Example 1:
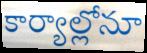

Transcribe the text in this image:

కార్యాల్లోనూ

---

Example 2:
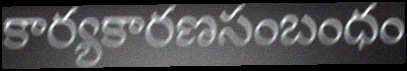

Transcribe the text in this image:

కార్యకారణసంబంధం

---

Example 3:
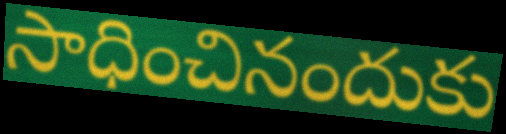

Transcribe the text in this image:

సాధించినందుకు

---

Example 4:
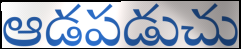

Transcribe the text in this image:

ఆడపడుచు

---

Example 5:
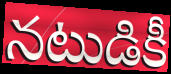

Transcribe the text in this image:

నటుడికీ